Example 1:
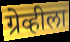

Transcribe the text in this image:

ग्रेव्हीला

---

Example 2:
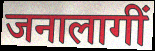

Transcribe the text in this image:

जनालागीं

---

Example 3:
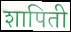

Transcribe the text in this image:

शापिती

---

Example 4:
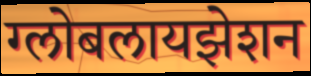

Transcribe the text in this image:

ग्लोबलायझेशन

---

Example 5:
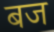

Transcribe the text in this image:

बज